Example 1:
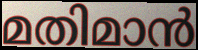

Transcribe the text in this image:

മതിമാൻ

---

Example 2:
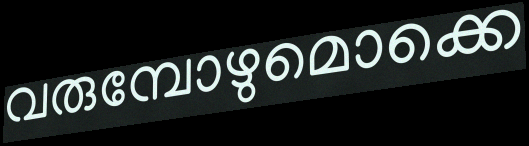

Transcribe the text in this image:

വരുമ്പോഴുമൊക്കെ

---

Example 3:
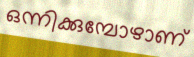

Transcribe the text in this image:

ഒന്നിക്കുമ്പോഴാണ്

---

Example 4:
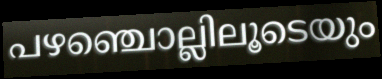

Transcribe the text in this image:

പഴഞ്ചൊല്ലിലൂടെയും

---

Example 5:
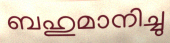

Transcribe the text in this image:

ബഹുമാനിച്ചു